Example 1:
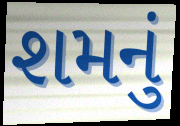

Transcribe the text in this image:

શમનું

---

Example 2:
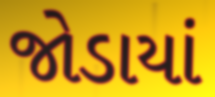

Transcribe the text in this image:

જોડાયાં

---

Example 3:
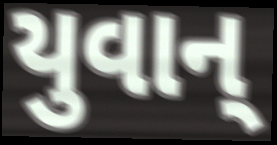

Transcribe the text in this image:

યુવાન્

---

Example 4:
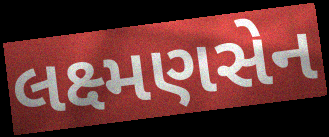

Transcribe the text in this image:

લક્ષ્મણસેન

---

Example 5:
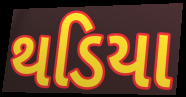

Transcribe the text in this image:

થડિયા